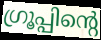
ഗ്രൂപ്പിന്റെ